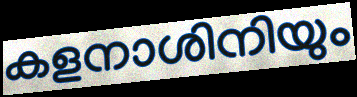
കളനാശിനിയും